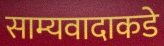
साम्यवादाकडे